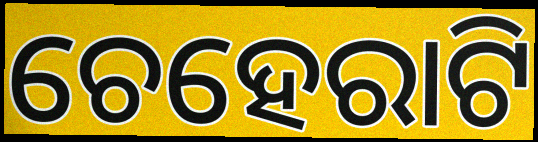
ଚେହେରାଟି